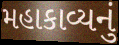
મહાકાવ્યનું